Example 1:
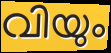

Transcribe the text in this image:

വിയും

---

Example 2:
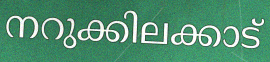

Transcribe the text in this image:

നറുക്കിലക്കാട്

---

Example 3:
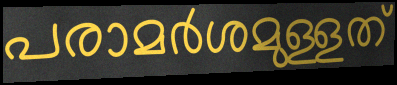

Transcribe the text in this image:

പരാമർശമുള്ളത്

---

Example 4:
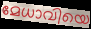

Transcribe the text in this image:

മേധാവിയെ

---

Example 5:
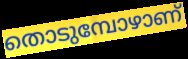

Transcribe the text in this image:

തൊടുമ്പോഴാണ്